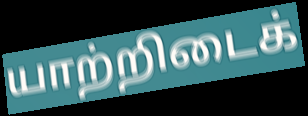
யாற்றிடைக்